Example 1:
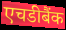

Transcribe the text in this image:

एचडीबैंक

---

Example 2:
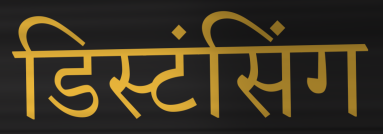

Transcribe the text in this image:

डिस्टंसिंग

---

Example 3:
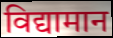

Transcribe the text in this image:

विद्यामान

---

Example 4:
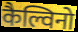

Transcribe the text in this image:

कैल्विनो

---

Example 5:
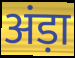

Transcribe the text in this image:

अंड़ा